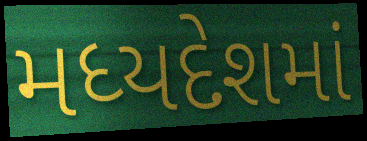
મધ્યદેશમાં